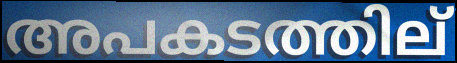
അപകടത്തില്